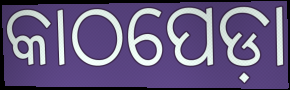
କାଠପେଡ଼ା